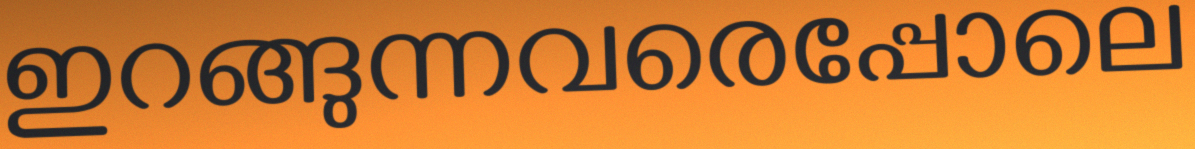
ഇറങ്ങുന്നവരെപ്പോലെ